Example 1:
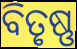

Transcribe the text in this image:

ବିତୃଷ୍ଣ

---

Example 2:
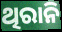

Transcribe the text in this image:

ଥିରାନି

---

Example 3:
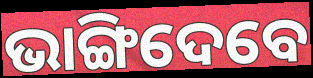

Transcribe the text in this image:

ଭାଙ୍ଗିଦେବେ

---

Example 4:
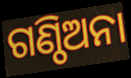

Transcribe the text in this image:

ଗଣ୍ଠିଅନା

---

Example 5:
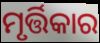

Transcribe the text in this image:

ମୃର୍ତ୍ତିକାର